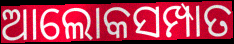
ଆଲୋକସମ୍ପାତ